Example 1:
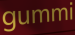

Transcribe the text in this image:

gummi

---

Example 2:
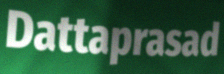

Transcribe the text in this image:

Dattaprasad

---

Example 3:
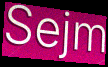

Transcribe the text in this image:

Sejm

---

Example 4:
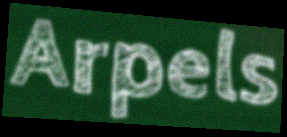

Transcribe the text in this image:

Arpels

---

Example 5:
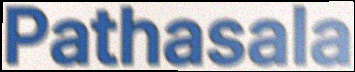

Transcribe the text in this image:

Pathasala